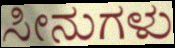
ಸೀನುಗಳು